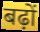
बढ़ों